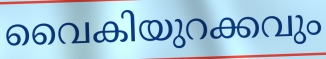
വൈകിയുറക്കവും